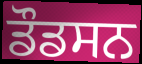
ਡੌਡਸਨ